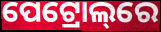
ପେଟ୍ରୋଲ୍‌ରେ